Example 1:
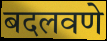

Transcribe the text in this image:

बदलवणे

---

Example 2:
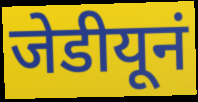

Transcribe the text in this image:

जेडीयूनं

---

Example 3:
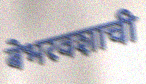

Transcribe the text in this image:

बेभरवशाची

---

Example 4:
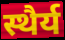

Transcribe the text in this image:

स्थैर्य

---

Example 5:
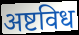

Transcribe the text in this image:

अष्टविध